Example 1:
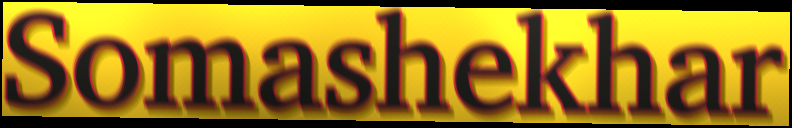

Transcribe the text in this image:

Somashekhar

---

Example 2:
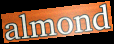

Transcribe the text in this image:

almond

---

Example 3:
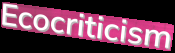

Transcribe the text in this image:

Ecocriticism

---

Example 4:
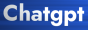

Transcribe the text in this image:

Chatgpt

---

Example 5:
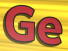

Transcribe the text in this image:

Ge